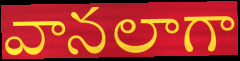
వానలాగా